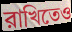
রাখিতেও